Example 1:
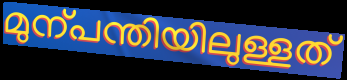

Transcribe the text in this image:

മുന്പന്തിയിലുള്ളത്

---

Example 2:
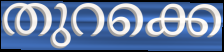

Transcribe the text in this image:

തുറക്കെ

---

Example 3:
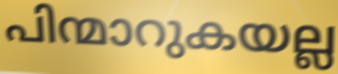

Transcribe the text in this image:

പിന്മാറുകയല്ല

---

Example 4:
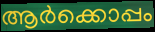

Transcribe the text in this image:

ആർക്കൊപ്പം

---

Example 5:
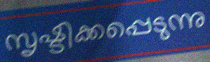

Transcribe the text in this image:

സൃഷ്ടിക്കപ്പെടുന്നു